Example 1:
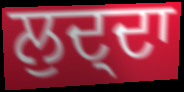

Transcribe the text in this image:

ਲੁਦ੍ਦਾ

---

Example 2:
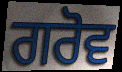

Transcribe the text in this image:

ਗਰੋਵ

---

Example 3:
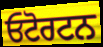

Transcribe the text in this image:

ਓਟੋਰਟਨ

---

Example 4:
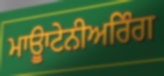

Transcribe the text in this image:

ਮਾਊਾਟੇਨੀਅਰਿੰਗ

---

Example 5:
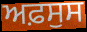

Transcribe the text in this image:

ਅਫ਼ਸੁਸ